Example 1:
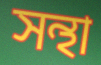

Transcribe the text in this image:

সন্থা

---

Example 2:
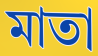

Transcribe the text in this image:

মাতা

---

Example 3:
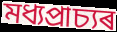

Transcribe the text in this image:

মধ্যপ্ৰাচ্যৰ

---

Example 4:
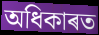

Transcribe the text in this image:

অধিকাৰত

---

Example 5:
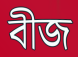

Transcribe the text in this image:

বীজ